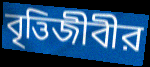
বৃত্তিজীবীর